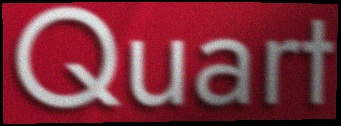
Quart